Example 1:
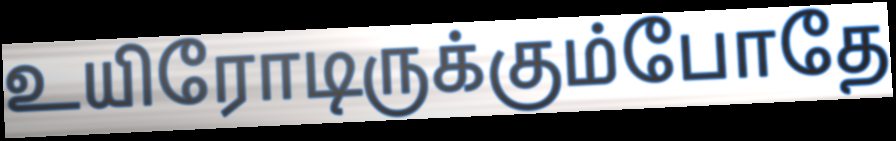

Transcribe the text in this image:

உயிரோடிருக்கும்போதே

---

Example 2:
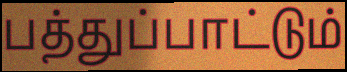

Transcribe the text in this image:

பத்துப்பாட்டும்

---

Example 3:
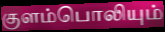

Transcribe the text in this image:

குளம்பொலியும்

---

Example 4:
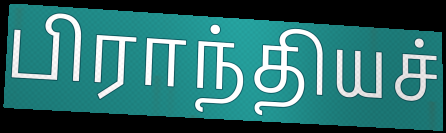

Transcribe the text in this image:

பிராந்தியச்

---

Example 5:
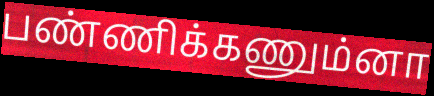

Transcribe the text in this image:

பண்ணிக்கணும்னா